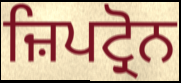
ਜ਼ਿਪਟ੍ਰੋਨ